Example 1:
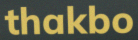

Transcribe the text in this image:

thakbo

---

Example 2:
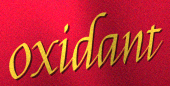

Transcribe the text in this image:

oxidant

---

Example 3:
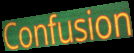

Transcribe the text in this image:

Confusion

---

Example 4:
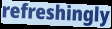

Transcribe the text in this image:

refreshingly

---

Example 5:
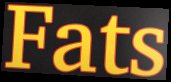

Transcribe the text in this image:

Fats